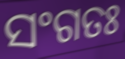
ସଂଗତଃ